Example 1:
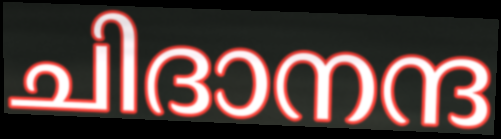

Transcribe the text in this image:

ചിദാനന്ദ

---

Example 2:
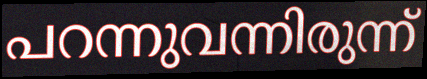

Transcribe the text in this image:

പറന്നുവന്നിരുന്ന്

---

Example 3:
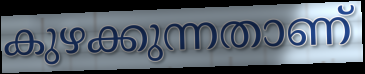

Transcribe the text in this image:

കുഴക്കുന്നതാണ്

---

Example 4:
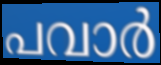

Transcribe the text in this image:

പവാർ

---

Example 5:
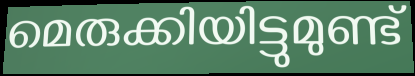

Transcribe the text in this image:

മെരുക്കിയിട്ടുമുണ്ട്